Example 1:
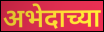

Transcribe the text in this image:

अभेदाच्या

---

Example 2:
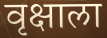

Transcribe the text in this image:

वृक्षाला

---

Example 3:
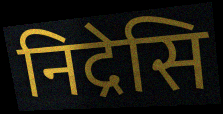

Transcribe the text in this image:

निद्रेसि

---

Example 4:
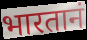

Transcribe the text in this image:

भारतानं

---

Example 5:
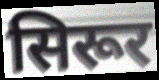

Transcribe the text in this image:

सिरूर